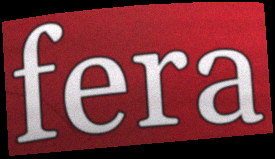
fera